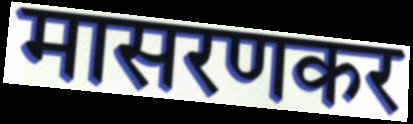
मासरणकर